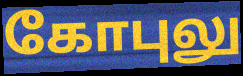
கோபுலு